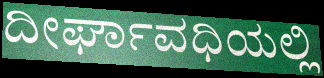
ದೀರ್ಘಾವಧಿಯಲ್ಲಿ